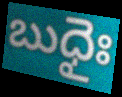
బుధైః